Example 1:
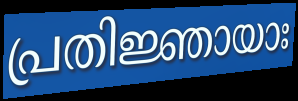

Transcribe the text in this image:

പ്രതിജ്ഞായാഃ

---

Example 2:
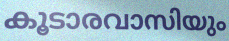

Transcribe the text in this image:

കൂടാരവാസിയും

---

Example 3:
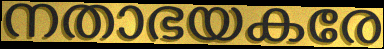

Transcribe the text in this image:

നതാഭയകരേ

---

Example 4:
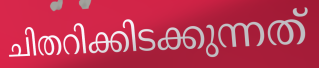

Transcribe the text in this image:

ചിതറിക്കിടക്കുന്നത്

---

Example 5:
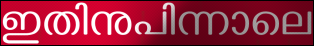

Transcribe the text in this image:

ഇതിനുപിന്നാലെ